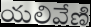
యలివేణి